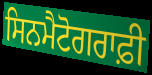
ਸਿਨਮੈਟੋਗਰਾਫ਼ੀ